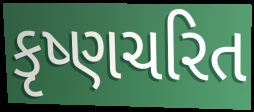
કૃષ્ણચરિત